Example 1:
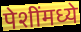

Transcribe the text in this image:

पेशींमध्ये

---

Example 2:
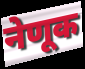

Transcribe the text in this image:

नेणूक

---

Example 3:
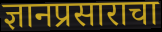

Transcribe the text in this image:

ज्ञानप्रसाराचा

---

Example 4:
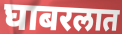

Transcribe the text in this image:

घाबरलात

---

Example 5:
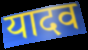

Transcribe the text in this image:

यादव